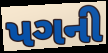
પગની